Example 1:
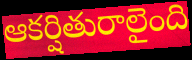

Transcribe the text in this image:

ఆకర్షితురాలైంది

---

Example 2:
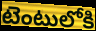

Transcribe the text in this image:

టెంటులోకి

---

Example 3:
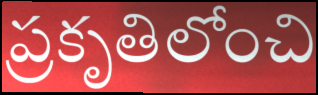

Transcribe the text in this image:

ప్రకృతిలోంచి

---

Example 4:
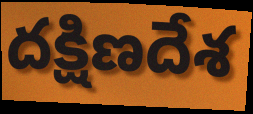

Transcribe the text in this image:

దక్షిణదేశ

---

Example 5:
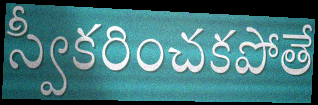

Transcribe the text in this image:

స్వీకరించకపోతే